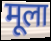
मूला